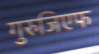
गुरुजिएफ